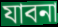
যাবনা